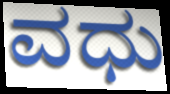
ವಧು